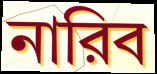
নারিব